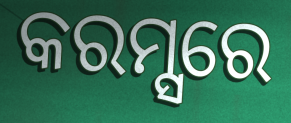
କରମ୍ସରେ